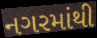
નગરમાંથી